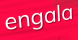
engala